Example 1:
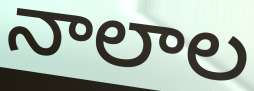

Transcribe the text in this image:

నాలాల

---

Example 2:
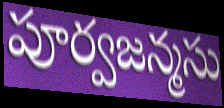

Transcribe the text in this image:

పూర్వజన్మసు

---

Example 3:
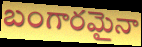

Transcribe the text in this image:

బంగారమైనా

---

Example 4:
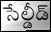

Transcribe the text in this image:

సేల్డీడ్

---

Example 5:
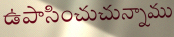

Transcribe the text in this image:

ఉపాసించుచున్నాము